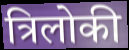
त्रिलोकी